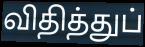
விதித்துப்